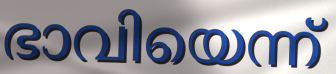
ഭാവിയെന്ന്